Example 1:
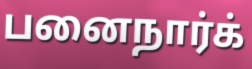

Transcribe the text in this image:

பனைநார்க்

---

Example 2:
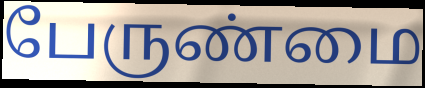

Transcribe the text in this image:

பேருண்மை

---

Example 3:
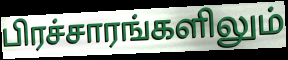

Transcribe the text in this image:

பிரச்சாரங்களிலும்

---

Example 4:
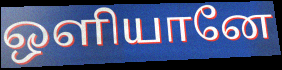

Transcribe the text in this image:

ஒளியானே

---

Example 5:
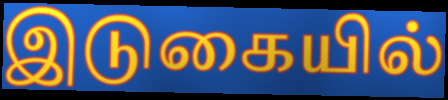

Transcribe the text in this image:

இடுகையில்